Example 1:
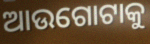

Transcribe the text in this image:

ଆଉଗୋଟାକୁ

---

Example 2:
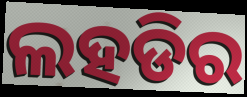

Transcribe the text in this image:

ଲହଡିର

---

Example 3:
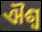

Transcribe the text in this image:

ଐଶ୍ୱ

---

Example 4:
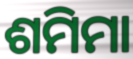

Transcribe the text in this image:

ଶମିମା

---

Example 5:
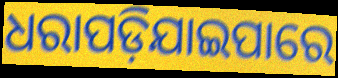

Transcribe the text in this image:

ଧରାପଡ଼ିଯାଇପାରେ